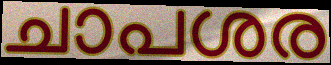
ചാപശര